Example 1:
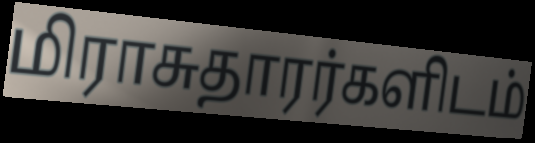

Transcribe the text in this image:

மிராசுதாரர்களிடம்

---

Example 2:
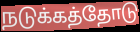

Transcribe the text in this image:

நடுக்கத்தோடு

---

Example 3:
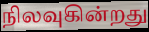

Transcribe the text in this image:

நிலவுகின்றது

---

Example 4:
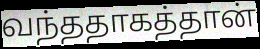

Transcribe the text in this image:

வந்ததாகத்தான்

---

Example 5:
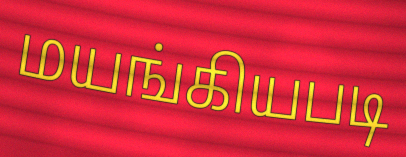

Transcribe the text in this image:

மயங்கியபடி